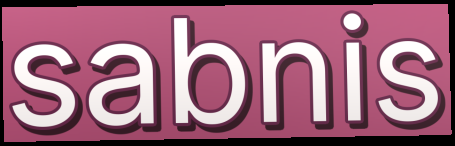
sabnis